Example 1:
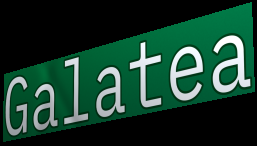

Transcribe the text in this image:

Galatea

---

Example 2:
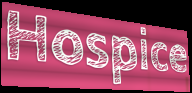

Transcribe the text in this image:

Hospice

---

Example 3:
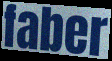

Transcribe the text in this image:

faber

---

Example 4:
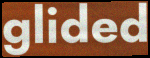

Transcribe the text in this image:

glided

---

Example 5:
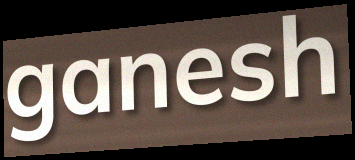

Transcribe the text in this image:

ganesh